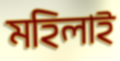
মহিলাই